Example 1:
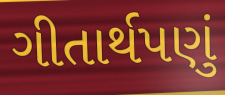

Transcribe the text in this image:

ગીતાર્થપણું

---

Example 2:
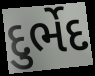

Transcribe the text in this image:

દુર્ભેદ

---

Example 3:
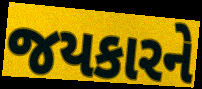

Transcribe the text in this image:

જયકારને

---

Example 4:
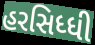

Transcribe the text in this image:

હરસિધ્ધી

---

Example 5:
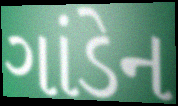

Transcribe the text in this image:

ગાંડેન